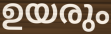
ഉയരും